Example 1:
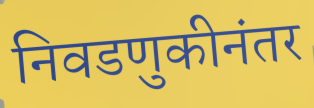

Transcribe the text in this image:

निवडणुकीनंतर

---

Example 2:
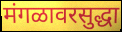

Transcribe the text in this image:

मंगळावरसुद्धा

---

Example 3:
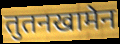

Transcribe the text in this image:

तुतनखामेन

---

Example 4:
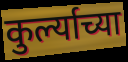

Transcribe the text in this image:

कुर्ल्याच्या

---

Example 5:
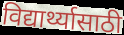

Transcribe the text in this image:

विद्यार्थ्यासाठी